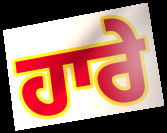
ਹਾਰੇ